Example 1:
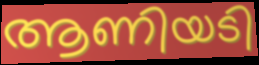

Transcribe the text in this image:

ആണിയടി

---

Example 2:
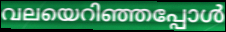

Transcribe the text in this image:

വലയെറിഞ്ഞപ്പോൾ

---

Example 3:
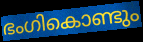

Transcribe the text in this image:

ഭംഗികൊണ്ടും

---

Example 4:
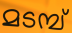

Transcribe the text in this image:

മടമ്പ്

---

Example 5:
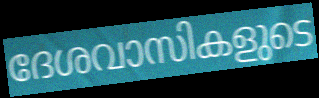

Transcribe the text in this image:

ദേശവാസികളുടെ